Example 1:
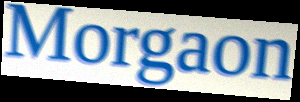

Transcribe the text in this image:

Morgaon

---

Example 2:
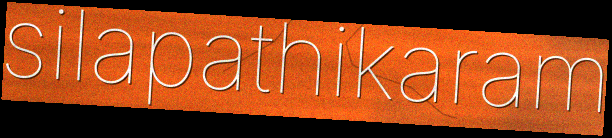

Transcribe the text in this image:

silapathikaram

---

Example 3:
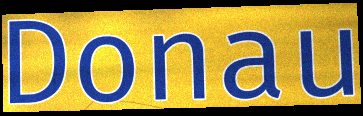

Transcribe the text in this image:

Donau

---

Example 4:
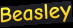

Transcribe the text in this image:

Beasley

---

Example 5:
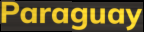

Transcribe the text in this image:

Paraguay